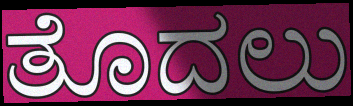
ತೊದಲು